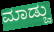
ಮಾಡ್ಚು